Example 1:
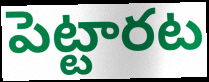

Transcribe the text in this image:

పెట్టారట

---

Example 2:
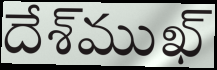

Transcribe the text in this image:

దేశ్‌ముఖ్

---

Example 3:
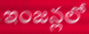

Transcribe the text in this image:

ఇంజన్లలో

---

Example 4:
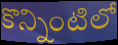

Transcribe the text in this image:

కొన్నింటిలో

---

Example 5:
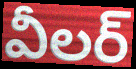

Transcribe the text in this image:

వీలర్